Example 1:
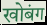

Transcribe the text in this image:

खोबंग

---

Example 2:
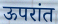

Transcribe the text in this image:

ऊपरांत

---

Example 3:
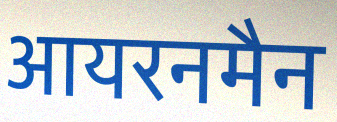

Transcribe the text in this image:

आयरनमैन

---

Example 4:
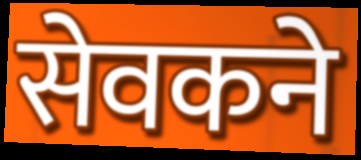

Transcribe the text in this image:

सेवकने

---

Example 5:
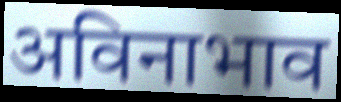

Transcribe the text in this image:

अविनाभाव